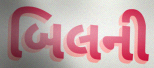
બિલની